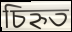
চিহ্নত